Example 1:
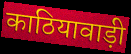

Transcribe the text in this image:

काठियावाड़ी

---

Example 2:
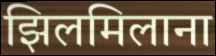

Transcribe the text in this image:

झिलमिलाना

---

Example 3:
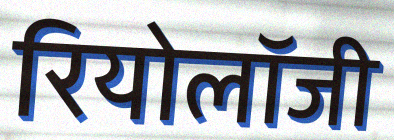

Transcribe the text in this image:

रियोलॉजी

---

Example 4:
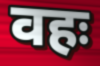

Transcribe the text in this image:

वहः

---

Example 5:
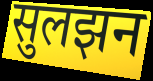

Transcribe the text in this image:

सुलझन